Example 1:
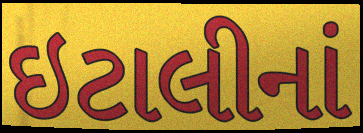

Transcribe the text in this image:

ઇટાલીનાં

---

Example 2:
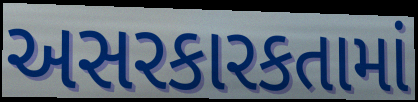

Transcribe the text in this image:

અસરકારકતામાં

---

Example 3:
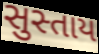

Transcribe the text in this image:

સુસ્તાય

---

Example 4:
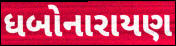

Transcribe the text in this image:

ધબોનારાયણ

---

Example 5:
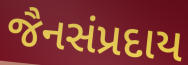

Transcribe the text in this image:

જૈનસંપ્રદાય